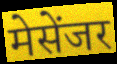
मेसेंजर